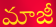
మాజీ